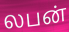
லபன்